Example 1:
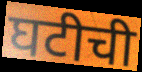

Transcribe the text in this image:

घटीची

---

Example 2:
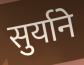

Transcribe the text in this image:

सुर्याने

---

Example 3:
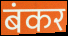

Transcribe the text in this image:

बंकर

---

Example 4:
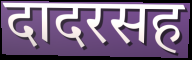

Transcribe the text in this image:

दादरसह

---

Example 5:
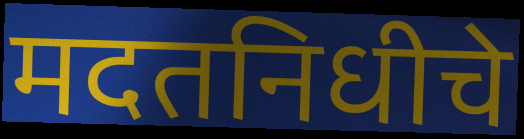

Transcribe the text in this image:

मदतनिधीचे